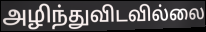
அழிந்துவிடவில்லை